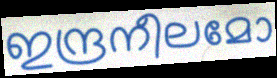
ഇന്ദ്രനീലമോ